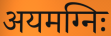
अयमग्निः